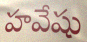
హవేషు